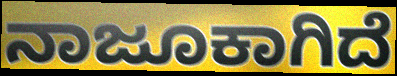
ನಾಜೂಕಾಗಿದೆ